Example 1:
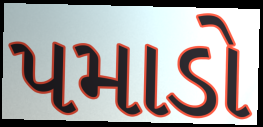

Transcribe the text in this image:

પમાડો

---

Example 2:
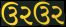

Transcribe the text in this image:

ઉરઉર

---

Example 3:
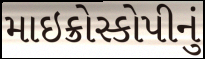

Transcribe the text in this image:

માઇક્રોસ્કોપીનું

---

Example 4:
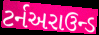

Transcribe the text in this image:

ટર્નઅરાઉન્ડ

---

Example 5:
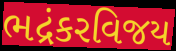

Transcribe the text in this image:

ભદ્રંકરવિજય